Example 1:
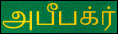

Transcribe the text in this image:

அபீபக்ர்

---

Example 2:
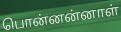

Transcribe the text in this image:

பொன்னன்னாள்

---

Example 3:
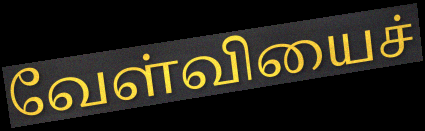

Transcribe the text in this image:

வேள்வியைச்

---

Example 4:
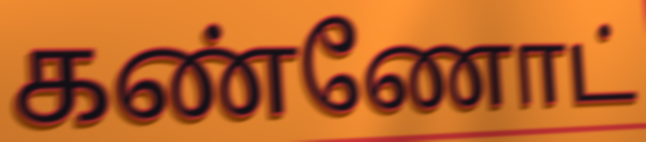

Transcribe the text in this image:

கண்ணோட்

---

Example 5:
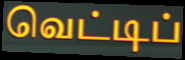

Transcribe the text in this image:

வெட்டிப்